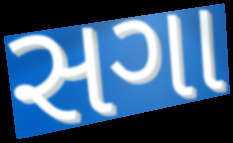
સગા